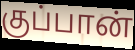
குப்பான்